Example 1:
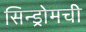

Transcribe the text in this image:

सिन्ड्रोमची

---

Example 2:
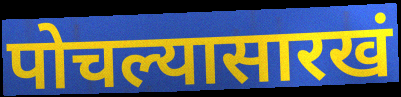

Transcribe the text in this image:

पोचल्यासारखं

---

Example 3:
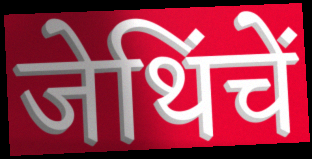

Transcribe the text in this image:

जेथिंचें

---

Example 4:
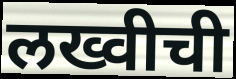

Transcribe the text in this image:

लख्वीची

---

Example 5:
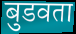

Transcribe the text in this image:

बुडवता